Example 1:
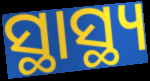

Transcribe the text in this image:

ସ୍ଥାସ୍ଥ୍ୟ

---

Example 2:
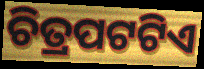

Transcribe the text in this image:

ଚିତ୍ରପଟଟିଏ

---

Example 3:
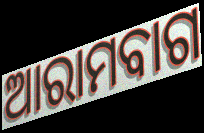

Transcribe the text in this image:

ଆରାମବାଗ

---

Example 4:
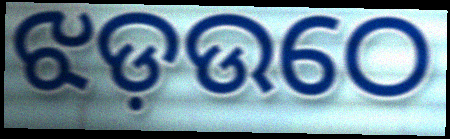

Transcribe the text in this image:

ଝଡ଼ଉଠେ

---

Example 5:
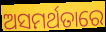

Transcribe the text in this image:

ଅସମର୍ଥତାରେ